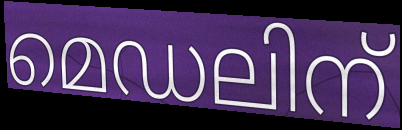
മെഡലിന്